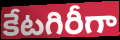
కేటగిరీగా